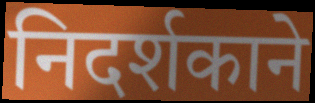
निदर्शकाने